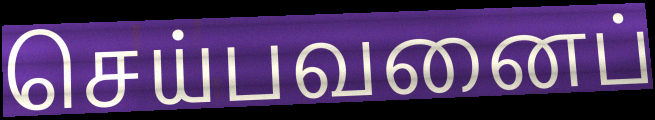
செய்பவனைப்